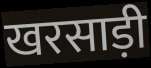
खरसाड़ी